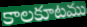
కాలకూటము